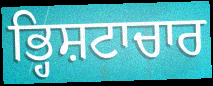
ਭ੍ਹਿਸ਼ਟਾਚਾਰ